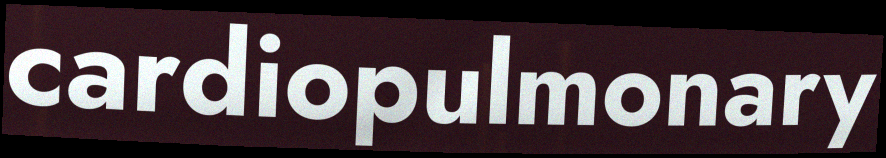
cardiopulmonary